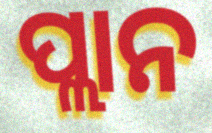
ପ୍ଲାନ